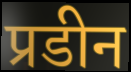
प्रडीन